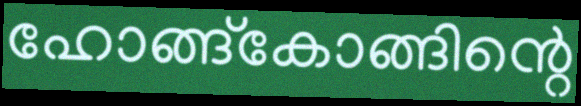
ഹോങ്ങ്കോങ്ങിന്റെ